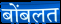
बोंबलत